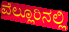
ವೆಲ್ಲೂರಿನಲ್ಲಿ